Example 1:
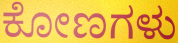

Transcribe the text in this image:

ಕೋಣಗಳು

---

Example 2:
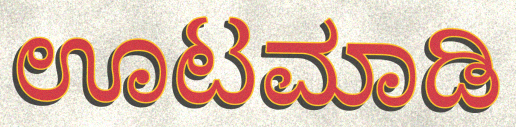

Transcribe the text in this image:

ಊಟಮಾಡಿ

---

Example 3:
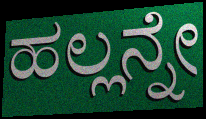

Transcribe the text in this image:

ಹಲ್ಲನ್ನೇ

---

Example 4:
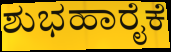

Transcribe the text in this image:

ಶುಭಹಾರೈಕೆ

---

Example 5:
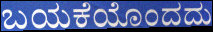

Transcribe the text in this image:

ಬಯಕೆಯೊಂದದು